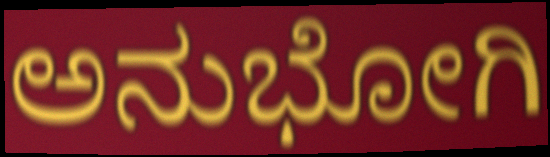
ಅನುಭೋಗಿ